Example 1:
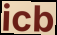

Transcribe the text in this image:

icb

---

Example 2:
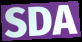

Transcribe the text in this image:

SDA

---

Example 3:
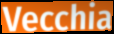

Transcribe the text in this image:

Vecchia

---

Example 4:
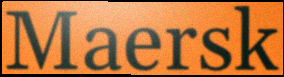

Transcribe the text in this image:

Maersk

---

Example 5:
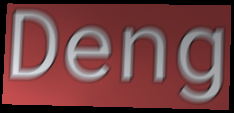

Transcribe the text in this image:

Deng